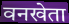
वनखेता